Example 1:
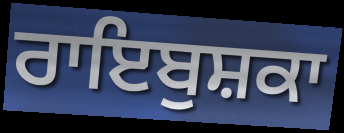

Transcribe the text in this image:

ਰਾਇਬੁਸ਼ਕਾ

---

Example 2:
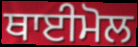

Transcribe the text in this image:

ਥਾਈਮੋਲ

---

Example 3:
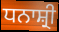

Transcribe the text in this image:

ਧਨਾਸ਼੍ਰੀ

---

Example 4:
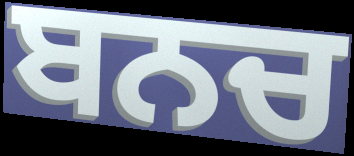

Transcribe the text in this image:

ਬਨਚ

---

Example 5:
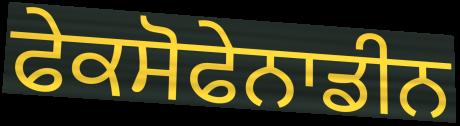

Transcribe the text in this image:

ਫੇਕਸੋਫੇਨਾਡੀਨ